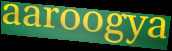
aaroogya